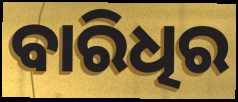
ବାରିଧିର